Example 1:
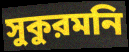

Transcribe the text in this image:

সুকুরমনি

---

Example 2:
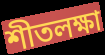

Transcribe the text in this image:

শীতলক্ষা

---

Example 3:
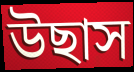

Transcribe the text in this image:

উছাস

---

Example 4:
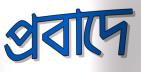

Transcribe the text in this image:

প্রবাদে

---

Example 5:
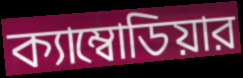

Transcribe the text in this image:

ক্যাম্বোডিয়ার